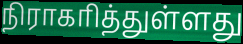
நிராகரித்துள்ளது